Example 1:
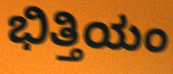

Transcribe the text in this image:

ಭಿತ್ತಿಯಂ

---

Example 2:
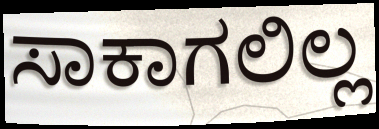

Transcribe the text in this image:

ಸಾಕಾಗಲಿಲ್ಲ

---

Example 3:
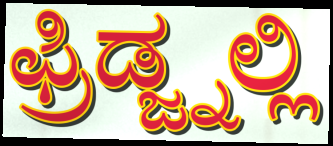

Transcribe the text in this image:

ಫ್ರಿಡ್ಜ್ನಲ್ಲಿ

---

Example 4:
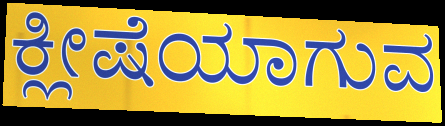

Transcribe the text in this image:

ಕ್ಲೀಷೆಯಾಗುವ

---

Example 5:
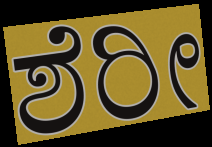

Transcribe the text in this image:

ಶೆರೀ